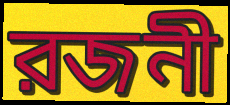
রজনী